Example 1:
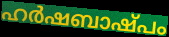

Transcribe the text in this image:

ഹർഷബാഷ്പം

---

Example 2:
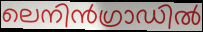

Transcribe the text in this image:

ലെനിൻഗ്രാഡിൽ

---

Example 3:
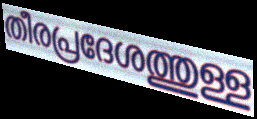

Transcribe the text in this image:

തീരപ്രദേശത്തുള്ള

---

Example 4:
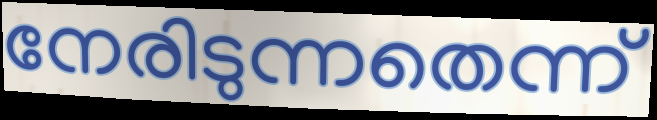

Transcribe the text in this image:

നേരിടുന്നതെന്ന്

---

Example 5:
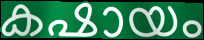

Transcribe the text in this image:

കഷായം